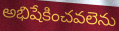
అభిషేకించవలెను